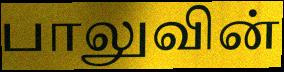
பாலுவின்